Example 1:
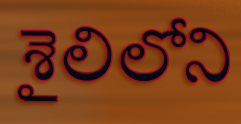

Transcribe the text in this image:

శైలిలోని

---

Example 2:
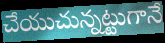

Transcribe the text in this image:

చేయుచున్నట్టుగానే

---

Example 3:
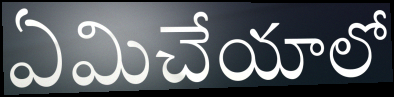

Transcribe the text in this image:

ఏమిచేయాలో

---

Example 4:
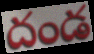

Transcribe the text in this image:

దండ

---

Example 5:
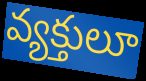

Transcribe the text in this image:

వ్యక్తులూ